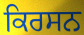
ਕਿਰਸਨ